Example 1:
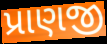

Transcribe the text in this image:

પ્રાણજી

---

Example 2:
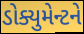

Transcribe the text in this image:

ડોક્યુમેન્ટને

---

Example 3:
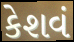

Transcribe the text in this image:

કેશવં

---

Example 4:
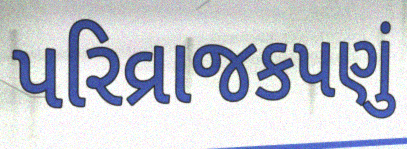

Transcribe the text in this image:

પરિવ્રાજકપણું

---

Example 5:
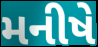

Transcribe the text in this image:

મનીષે